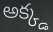
అక్క్డ